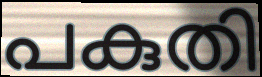
പകുതി